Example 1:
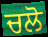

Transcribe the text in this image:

ਚਲੋ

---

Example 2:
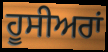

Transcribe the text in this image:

ਹੂਸੀਅਰਾਂ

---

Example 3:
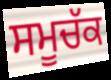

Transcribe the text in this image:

ਸਮੂਚੱਕ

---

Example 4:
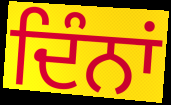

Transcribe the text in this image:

ਦਿੰਨਾਂ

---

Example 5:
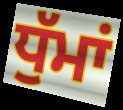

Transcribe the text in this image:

ਧੁੱਮਾਂ